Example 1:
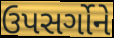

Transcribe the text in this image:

ઉપસર્ગોને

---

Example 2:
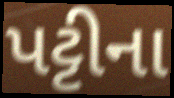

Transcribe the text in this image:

પટ્ટીના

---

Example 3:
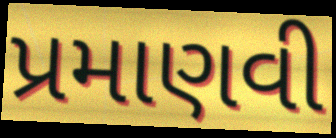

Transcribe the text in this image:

પ્રમાણવી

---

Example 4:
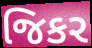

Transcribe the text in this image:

જિકર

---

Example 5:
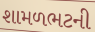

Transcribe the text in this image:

શામળભટની